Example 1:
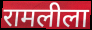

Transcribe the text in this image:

रामलीला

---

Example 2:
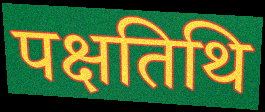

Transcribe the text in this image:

पक्षतिथि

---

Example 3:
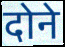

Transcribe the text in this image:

दोने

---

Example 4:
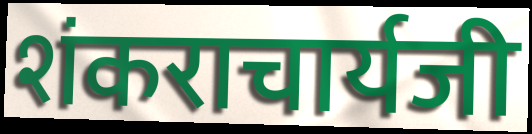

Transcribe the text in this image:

शंकराचार्यजी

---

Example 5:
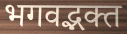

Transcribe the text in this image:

भगवद्भक्त